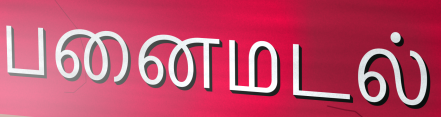
பனைமடல்